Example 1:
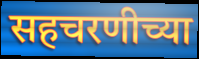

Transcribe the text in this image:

सहचरणीच्या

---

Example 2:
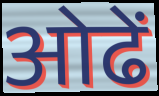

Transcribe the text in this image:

ओढें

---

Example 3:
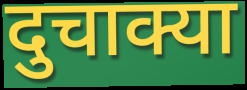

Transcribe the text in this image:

दुचाक्या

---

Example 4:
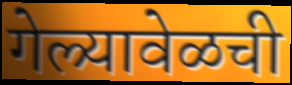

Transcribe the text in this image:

गेल्यावेळची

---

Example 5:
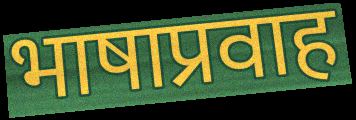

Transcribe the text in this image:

भाषाप्रवाह